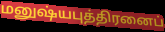
மனுஷ்யபுத்திரனைப்